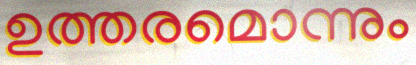
ഉത്തരമൊന്നും